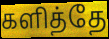
களித்தே